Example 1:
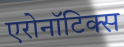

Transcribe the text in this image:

एरोनॉटिक्स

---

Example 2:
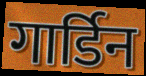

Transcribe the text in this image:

गार्डिन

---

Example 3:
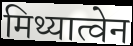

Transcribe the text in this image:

मिथ्यात्वेन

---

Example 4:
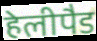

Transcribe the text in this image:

हेलीपैड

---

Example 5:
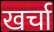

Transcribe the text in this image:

खर्चा